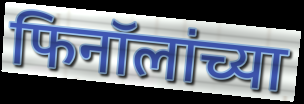
फिनॉलांच्या